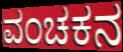
ವಂಚಕನ